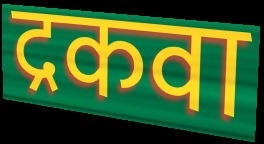
द्रकवा